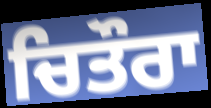
ਚਿਤੌਰਾ